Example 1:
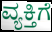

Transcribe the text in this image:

ವ್ಯಕ್ತಿಗೆ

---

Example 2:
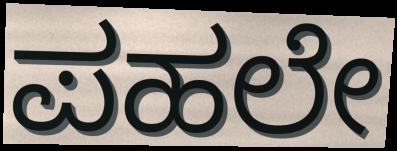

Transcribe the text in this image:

ಪಹಲೇ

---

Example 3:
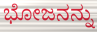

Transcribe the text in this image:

ಭೋಜನನ್ನು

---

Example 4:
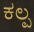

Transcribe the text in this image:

ಕಲ್ಪ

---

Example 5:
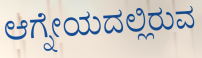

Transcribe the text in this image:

ಆಗ್ನೇಯದಲ್ಲಿರುವ